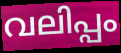
വലിപ്പം